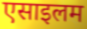
एसाइलम